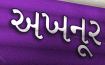
અખનૂર